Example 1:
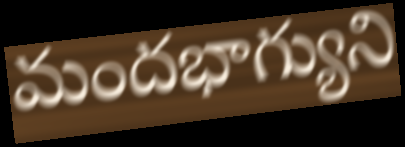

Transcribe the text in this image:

మందభాగ్యుని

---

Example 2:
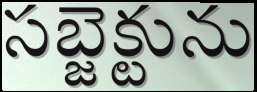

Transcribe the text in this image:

సబ్జెక్టును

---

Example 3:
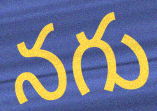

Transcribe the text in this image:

నగు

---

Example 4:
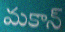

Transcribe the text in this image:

మకాన్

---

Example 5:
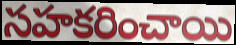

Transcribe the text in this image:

సహకరించాయి